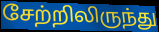
சேற்றிலிருந்து